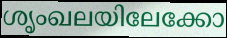
ശൃംഖലയിലേക്കോ